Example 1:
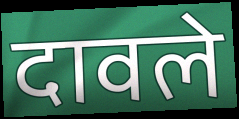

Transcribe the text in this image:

दावले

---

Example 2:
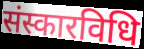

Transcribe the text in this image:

संस्कारविधि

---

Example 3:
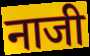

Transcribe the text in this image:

नाजी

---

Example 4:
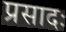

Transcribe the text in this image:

प्रसादः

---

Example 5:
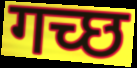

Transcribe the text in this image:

गच्छ